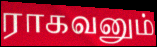
ராகவனும்